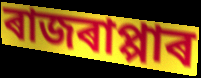
ৰাজৰাপ্পাৰ